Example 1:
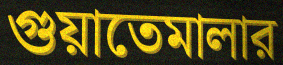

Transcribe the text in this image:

গুয়াতেমালার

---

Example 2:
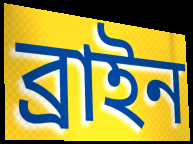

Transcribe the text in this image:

ব্রাইন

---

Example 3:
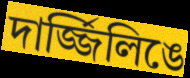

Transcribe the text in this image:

দার্জ্জিলিঙে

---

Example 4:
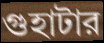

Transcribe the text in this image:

গুহাটার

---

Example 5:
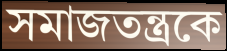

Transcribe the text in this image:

সমাজতন্ত্রকে